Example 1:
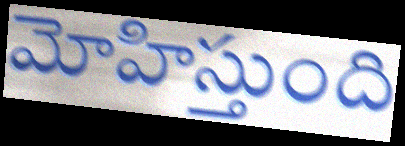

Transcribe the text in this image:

మోహిస్తుంది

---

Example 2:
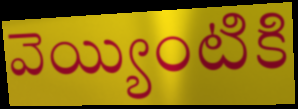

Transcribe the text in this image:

వెయ్యింటికి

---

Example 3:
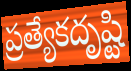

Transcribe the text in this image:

ప్రత్యేకదృష్టి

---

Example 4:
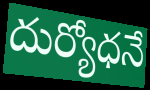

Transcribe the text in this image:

దుర్యోధనే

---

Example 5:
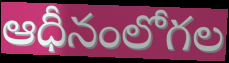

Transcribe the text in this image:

ఆధీనంలోగల